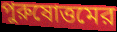
পুরুষোত্তমের